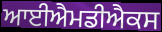
ਆਈਐਮਡੀਐਕਸ